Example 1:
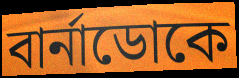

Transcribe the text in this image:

বার্নাডোকে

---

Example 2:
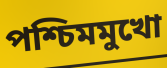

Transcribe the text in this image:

পশ্চিমমুখো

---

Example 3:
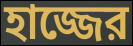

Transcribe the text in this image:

হাজ্জের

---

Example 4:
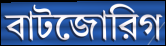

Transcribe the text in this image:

বাটজোরিগ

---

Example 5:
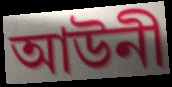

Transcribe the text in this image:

আউনী